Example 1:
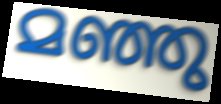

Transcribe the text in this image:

മഞ്ഞു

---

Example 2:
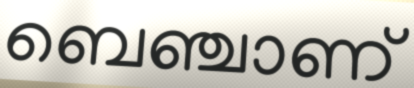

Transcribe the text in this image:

ബെഞ്ചാണ്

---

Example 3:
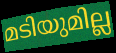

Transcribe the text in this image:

മടിയുമില്ല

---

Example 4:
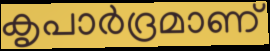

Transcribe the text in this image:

കൃപാർദ്രമാണ്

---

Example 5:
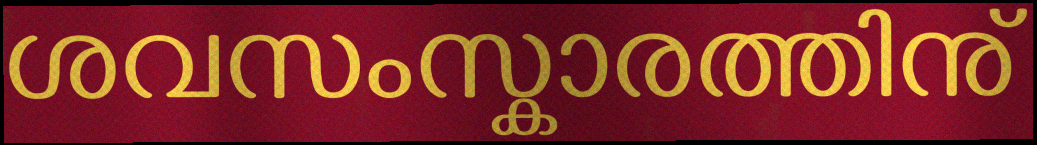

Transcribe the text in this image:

ശവസംസ്കാരത്തിനു്